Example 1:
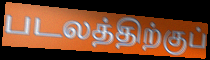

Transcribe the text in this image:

படலத்திற்குப்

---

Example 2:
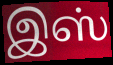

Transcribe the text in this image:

இஸ்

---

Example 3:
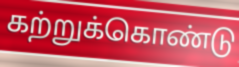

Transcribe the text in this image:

கற்றுக்கொண்டு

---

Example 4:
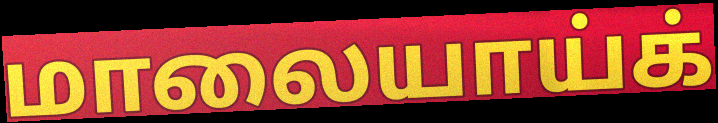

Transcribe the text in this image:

மாலையாய்க்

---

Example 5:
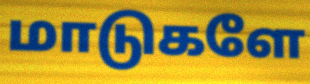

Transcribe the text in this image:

மாடுகளே